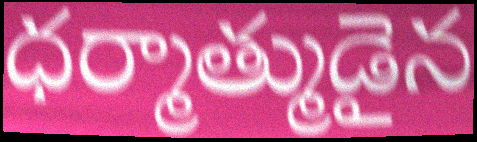
ధర్మాత్ముడైన